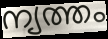
ന്യത്തം